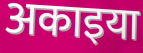
अकाइया